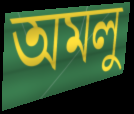
অমলু